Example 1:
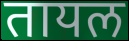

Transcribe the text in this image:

तायल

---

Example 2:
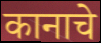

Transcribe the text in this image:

कानाचे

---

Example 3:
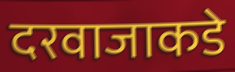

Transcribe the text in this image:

दरवाजाकडे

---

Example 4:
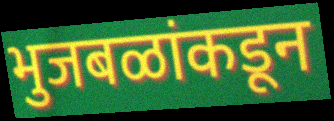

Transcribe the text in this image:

भुजबळांकडून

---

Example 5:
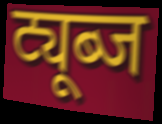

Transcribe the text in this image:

ट्यूब्ज